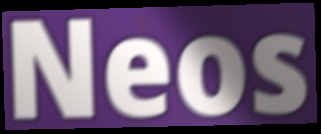
Neos